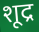
शूद्र